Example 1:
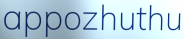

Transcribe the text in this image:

appozhuthu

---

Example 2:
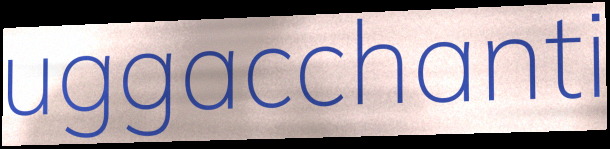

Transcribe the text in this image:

uggacchanti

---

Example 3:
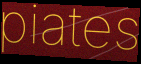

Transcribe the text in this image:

piates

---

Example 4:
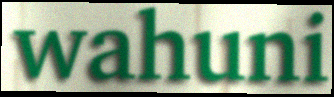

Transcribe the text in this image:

wahuni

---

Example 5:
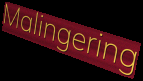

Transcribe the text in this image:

Malingering